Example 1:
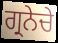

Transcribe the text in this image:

ਗ੍ਰਨੇਚੇ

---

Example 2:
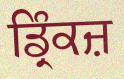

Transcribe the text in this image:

ਡ੍ਰਿੰਕਜ਼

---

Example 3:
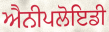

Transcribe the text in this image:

ਐਨੀਪਲੋਇਡੀ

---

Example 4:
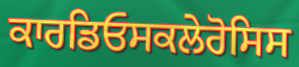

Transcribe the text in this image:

ਕਾਰਡਿਓਸਕਲੇਰੋਸਿਸ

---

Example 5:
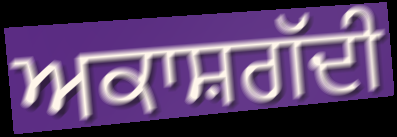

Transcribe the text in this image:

ਅਕਾਸ਼ਗੱਦੀ